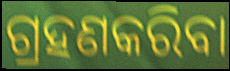
ଗ୍ରହଣକରିବା